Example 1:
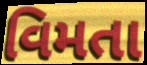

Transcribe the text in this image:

વિમતા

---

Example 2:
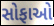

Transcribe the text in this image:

સોફાઓ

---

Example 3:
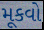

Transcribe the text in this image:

મૂકવો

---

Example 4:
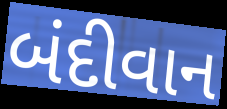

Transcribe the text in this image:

બંદીવાન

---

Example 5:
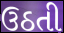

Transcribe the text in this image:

ઉઠતી